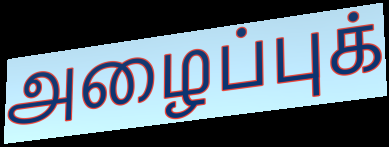
அழைப்புக்